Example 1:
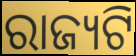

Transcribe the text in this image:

ରାଜ୍ୟଟି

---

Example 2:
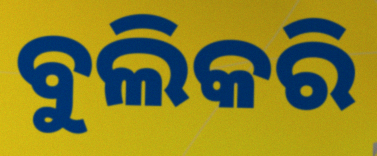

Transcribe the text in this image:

ବୁଲିକରି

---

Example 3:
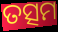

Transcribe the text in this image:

ତତ୍ସମ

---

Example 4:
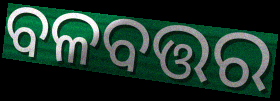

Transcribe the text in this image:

ବଳବତ୍ତର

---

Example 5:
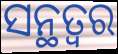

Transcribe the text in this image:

ସନ୍ଥତ୍ବର